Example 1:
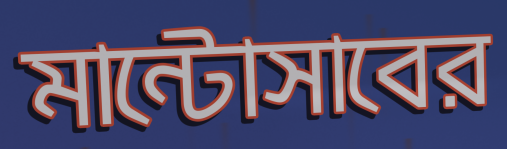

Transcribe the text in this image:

মান্টোসাবের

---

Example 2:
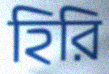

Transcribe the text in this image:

হিরি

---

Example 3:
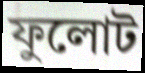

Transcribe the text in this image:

ফুলোট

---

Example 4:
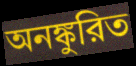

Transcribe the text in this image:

অনঙ্কুরিত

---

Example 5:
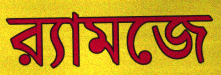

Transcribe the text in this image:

র‍্যামজে